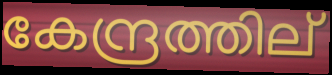
കേന്ദ്രത്തില്